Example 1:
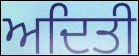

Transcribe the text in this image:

ਅਦਿਤੀ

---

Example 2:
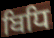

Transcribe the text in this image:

ਬਿਧਿ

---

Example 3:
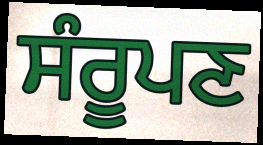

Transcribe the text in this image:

ਸੰਰੂਪਣ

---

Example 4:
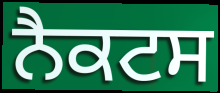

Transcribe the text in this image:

ਨੈਕਟਸ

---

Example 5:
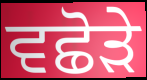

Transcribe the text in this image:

ਵਛੋੜੇ